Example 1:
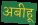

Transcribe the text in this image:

अबीहू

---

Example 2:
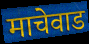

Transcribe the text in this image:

माचेवाड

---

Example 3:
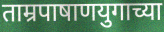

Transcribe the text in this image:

ताम्रपाषाणयुगाच्या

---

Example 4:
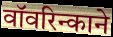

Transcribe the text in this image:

वॉवरिन्काने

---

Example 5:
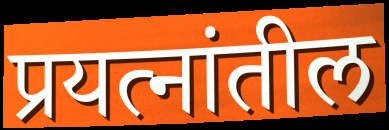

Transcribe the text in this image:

प्रयत्नांतील